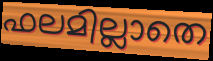
ഫലമില്ലാതെ